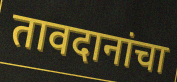
तावदानांचा